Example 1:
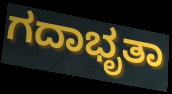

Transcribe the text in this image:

ಗದಾಭೃತಾ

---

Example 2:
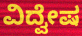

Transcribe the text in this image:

ವಿದ್ವೇಷ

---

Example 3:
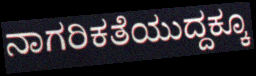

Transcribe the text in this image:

ನಾಗರಿಕತೆಯುದ್ದಕ್ಕೂ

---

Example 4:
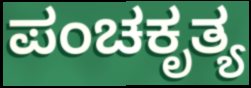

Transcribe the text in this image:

ಪಂಚಕೃತ್ಯ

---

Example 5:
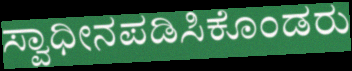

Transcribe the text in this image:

ಸ್ವಾಧೀನಪಡಿಸಿಕೊಂಡರು